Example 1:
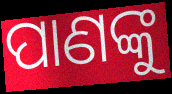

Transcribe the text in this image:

ପାଣଙ୍କୁ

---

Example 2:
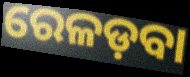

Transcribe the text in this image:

ରେଳଡ଼ବା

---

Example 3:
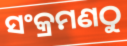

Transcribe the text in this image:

ସଂକ୍ରମଣଠୁ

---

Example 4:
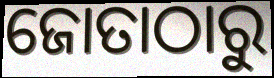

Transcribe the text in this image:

ଜୋତାଠାରୁ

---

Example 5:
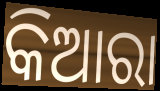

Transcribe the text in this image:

କିଆରା